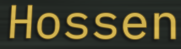
Hossen